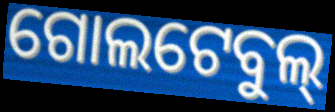
ଗୋଲଟେବୁଲ୍